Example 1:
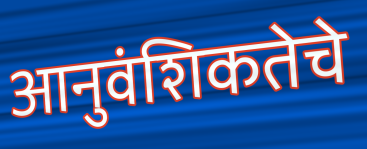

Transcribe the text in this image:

आनुवंशिकतेचे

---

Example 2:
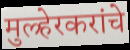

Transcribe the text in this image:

मुल्हेरकरांचे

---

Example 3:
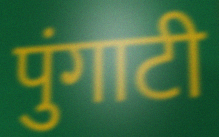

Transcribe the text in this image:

पुंगाटी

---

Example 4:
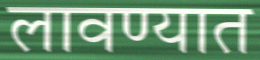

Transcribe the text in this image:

लावण्यात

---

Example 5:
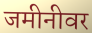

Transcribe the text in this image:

जमीनीवर